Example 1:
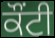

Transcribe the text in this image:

ਕੌਂਟੀ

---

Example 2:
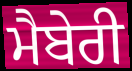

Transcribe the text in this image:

ਮੈਬੇਰੀ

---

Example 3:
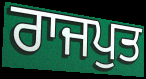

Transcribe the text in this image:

ਰਾਜਪੁਤ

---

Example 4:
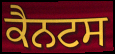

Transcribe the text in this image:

ਕੈਨਟਸ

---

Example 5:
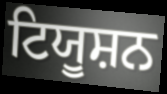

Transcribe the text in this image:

ਟਿਯੂਸ਼ਨ